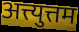
अत्त्युत्तम